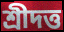
শ্রীদত্ত